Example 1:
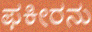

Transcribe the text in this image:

ಫಕೀರನು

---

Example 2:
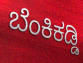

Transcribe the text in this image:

ಬೆಂಕಿಕಡ್ಡಿ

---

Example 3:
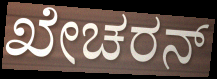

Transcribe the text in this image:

ಖೇಚರನ್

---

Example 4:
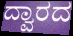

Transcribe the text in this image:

ದ್ವಾರದ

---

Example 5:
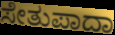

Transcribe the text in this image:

ಸೇತುಪಾದಾ